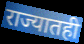
राज्यातही